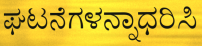
ಘಟನೆಗಳನ್ನಾಧರಿಸಿ